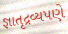
જ્ઞાતૃદ્રવ્યપણે